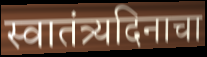
स्वातंत्र्यदिनाचा